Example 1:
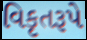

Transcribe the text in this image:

વિકૃતરૂપે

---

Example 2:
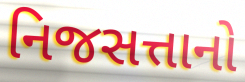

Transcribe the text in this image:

નિજસત્તાનો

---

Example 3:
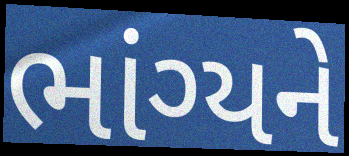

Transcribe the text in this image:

ભાંગ્યને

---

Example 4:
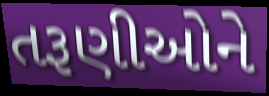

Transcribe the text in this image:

તરૂણીઓને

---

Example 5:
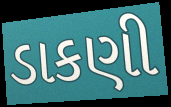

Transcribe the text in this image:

ડાકણી